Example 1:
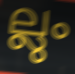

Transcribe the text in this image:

ല്ലും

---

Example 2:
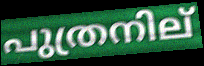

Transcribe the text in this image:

പുത്രനില്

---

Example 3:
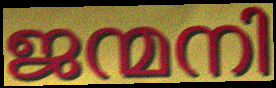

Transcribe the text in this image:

ജന്മനി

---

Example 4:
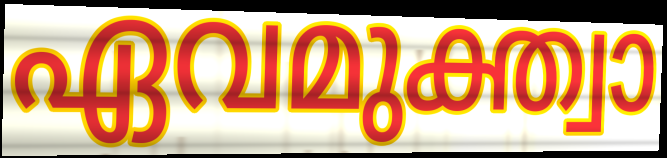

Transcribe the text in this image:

ഏവമുക്ത്വാ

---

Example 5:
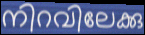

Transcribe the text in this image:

നിറവിലേക്കു